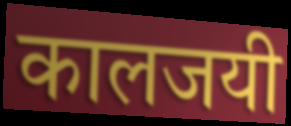
कालजयी